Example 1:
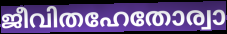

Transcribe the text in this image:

ജീവിതഹേതോര്വാ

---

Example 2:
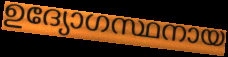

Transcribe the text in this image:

ഉദ്യോഗസ്ഥനായ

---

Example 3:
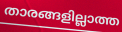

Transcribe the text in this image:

താരങ്ങളില്ലാത്ത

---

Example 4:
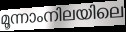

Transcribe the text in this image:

മൂന്നാംനിലയിലെ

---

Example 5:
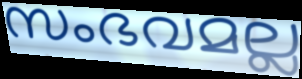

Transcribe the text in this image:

സംഭവമല്ല